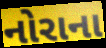
નોરાના